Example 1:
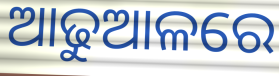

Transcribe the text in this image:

ଆଢୁଆଳରେ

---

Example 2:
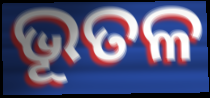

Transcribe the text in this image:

ଭୂତଳ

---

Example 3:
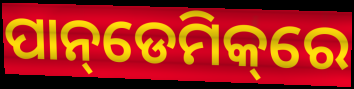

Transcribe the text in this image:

ପାନ୍‌ଡେମିକ୍‌ରେ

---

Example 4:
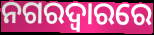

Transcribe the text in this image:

ନଗରଦ୍ୱାରରେ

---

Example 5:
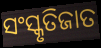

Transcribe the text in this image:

ସଂସ୍କୃତିଜାତ